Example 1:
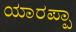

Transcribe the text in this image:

ಯಾರಪ್ಪಾ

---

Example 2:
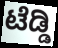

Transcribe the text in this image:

ಟೆಡ್ಡಿ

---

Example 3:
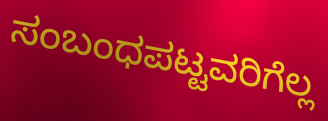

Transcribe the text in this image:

ಸಂಬಂಧಪಟ್ಟವರಿಗೆಲ್ಲ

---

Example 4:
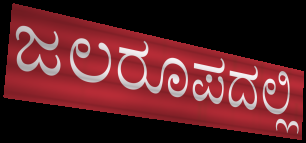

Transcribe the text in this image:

ಜಲರೂಪದಲ್ಲಿ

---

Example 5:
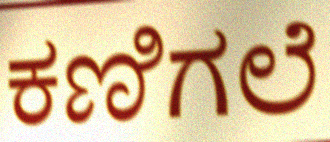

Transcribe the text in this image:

ಕಣಿಗಲೆ